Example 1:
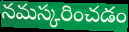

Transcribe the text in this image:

నమస్కరించడం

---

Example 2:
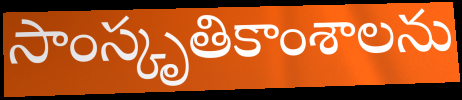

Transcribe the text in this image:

సాంస్కృతికాంశాలను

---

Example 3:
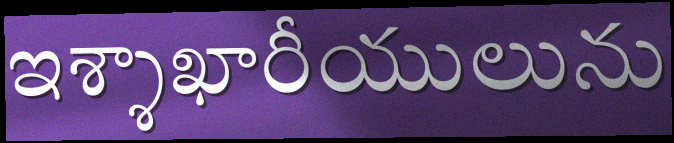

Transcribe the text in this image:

ఇశ్శాఖారీయులును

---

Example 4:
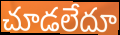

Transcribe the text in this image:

చూడలేదూ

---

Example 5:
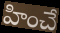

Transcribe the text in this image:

హించే